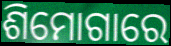
ଶିମୋଗାରେ